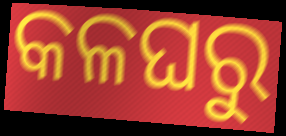
କଳଘରୁ